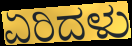
ಏರಿದಳು